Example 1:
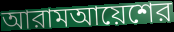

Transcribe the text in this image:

আরামআয়েশের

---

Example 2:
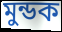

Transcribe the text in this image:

মুন্ডক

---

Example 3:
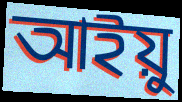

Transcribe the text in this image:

আইয়ু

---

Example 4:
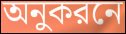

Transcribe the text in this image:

অনুকরনে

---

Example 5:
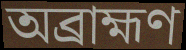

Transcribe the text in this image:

অব্রাহ্মণ